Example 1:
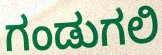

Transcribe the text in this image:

ಗಂಡುಗಲಿ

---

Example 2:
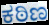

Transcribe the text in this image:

ಕಠಿಣ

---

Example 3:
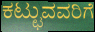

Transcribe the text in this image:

ಕಟ್ಟುವವರಿಗೆ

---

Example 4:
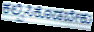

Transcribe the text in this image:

ಕಲ್ಪಿಸಿಕೊಡಬೇಕು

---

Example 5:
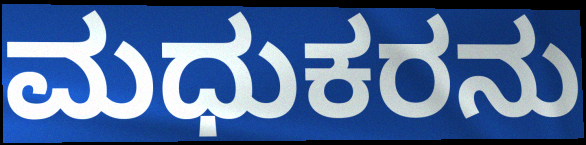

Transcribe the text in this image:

ಮಧುಕರನು